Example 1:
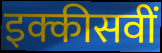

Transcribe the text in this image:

इक्कीसवीं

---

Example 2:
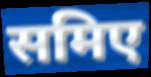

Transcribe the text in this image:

समिए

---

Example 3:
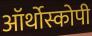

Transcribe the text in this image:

ऑर्थोस्कोपी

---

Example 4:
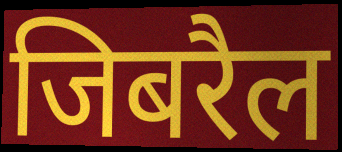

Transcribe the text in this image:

जिबरैल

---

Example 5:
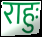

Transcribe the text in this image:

राहुः